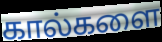
கால்களை